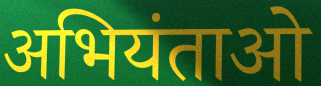
अभियंताओ